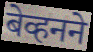
बेव्हनने